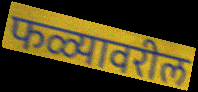
फळ्यावरील